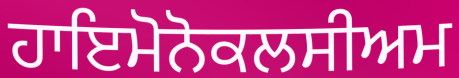
ਹਾਇਮੋਨੋਕਲਸੀਅਮ